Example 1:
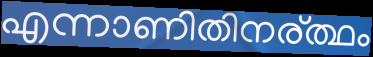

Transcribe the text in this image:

എന്നാണിതിനര്ത്ഥം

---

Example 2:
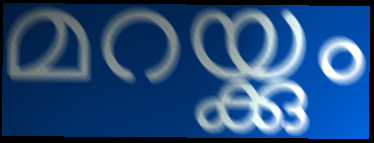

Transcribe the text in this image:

മറയ്ക്കും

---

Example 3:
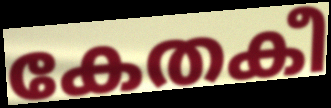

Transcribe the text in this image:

കേതകീ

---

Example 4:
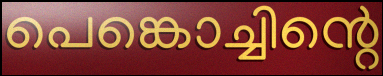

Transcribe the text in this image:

പെങ്കൊച്ചിന്റെ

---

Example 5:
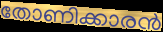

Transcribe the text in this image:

തോണിക്കാരൻ